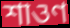
শাওণ